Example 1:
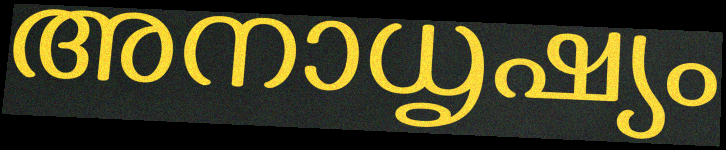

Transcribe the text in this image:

അനാധൃഷ്യം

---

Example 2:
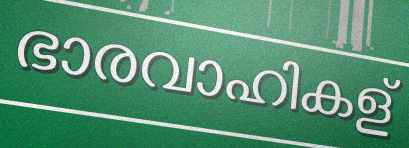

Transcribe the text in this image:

ഭാരവാഹികള്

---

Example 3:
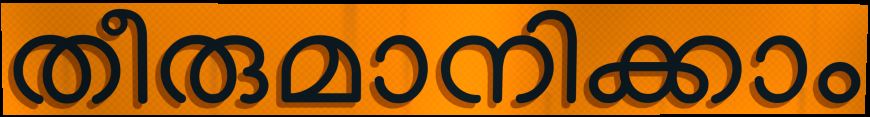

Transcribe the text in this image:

തീരുമാനിക്കാം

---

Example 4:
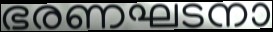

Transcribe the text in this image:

ഭരണഘടനാ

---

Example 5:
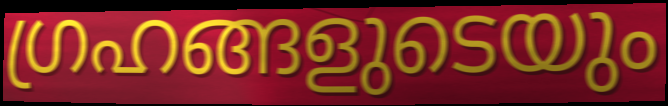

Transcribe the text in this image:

ഗ്രഹങ്ങളുടെയും